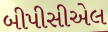
બીપીસીએલ